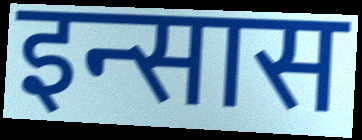
इन्सास